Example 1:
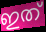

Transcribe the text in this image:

ഇത്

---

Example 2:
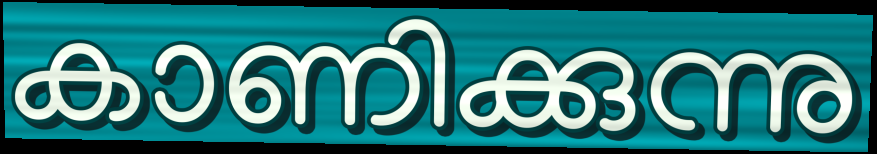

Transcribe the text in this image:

കാണിക്കുന്നു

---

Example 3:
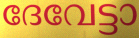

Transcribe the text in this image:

ദേവേട്ടാ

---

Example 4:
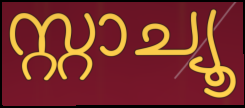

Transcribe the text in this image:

സ്റ്റാച്യൂ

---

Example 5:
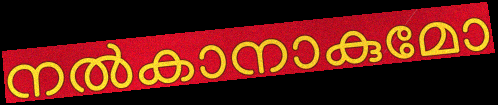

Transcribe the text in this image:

നൽകാനാകുമോ